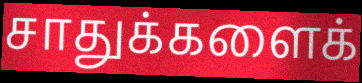
சாதுக்களைக்